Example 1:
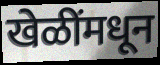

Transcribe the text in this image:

खेळींमधून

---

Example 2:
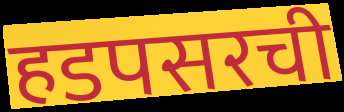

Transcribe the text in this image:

हडपसरची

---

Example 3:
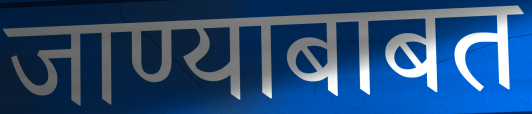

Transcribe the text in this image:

जाण्याबाबत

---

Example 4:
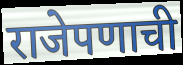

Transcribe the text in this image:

राजेपणाची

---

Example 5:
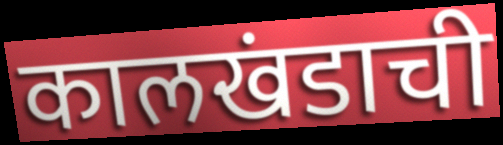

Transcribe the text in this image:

कालखंडाची